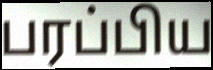
பரப்பிய